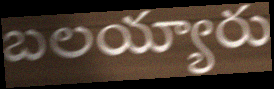
బలయ్యారు